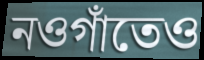
নওগাঁতেও